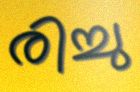
രിച്ചു